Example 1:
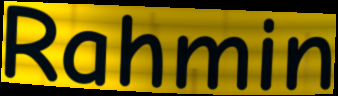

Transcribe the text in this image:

Rahmin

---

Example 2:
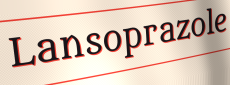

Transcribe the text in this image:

Lansoprazole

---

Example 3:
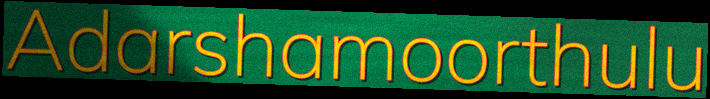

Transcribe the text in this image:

Adarshamoorthulu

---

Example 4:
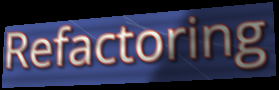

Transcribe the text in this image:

Refactoring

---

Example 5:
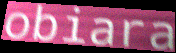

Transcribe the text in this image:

obiara